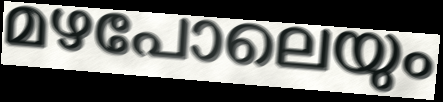
മഴപോലെയും